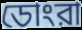
ডোংরা